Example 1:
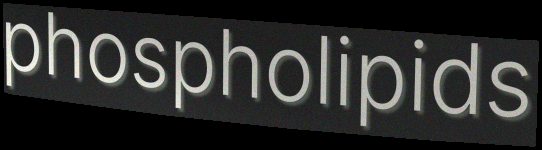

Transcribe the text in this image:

phospholipids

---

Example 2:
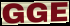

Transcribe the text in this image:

GGE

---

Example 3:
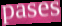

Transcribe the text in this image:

pases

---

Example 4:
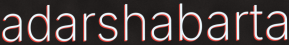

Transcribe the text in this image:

adarshabarta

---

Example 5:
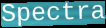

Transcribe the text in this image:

Spectra